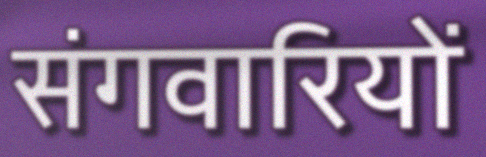
संगवारियों